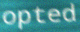
opted